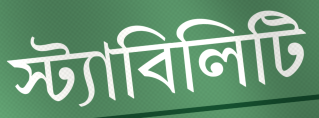
স্ট্যাবিলিটি